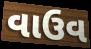
વાઉવ